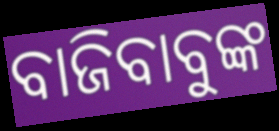
ବାଜିବାବୁଙ୍କ